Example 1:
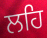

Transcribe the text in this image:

ਲਹਿ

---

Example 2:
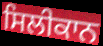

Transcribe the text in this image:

ਸਿਲੀਕਾਨ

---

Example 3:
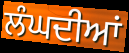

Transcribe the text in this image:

ਲੰਘਦੀਆਂ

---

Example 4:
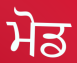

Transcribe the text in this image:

ਮੋਡ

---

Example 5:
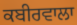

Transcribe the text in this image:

ਕਬੀਰਵਾਲਾ